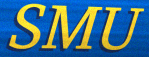
SMU